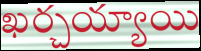
ఖర్చయ్యాయి